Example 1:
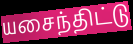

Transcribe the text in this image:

யசைந்திட்டு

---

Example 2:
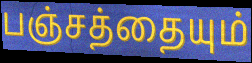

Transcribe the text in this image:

பஞ்சத்தையும்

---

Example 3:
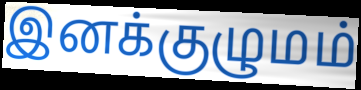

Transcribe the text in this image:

இனக்குழுமம்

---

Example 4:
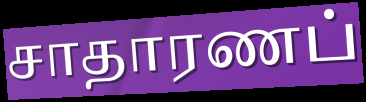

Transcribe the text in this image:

சாதாரணப்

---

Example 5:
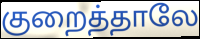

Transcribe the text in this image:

குறைத்தாலே